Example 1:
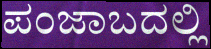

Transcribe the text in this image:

ಪಂಜಾಬದಲ್ಲಿ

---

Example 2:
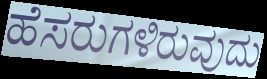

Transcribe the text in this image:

ಹೆಸರುಗಳಿರುವುದು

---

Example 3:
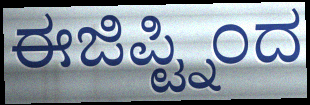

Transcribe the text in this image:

ಈಜಿಪ್ಟ್ನಿಂದ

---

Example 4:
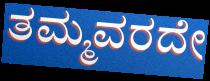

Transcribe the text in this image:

ತಮ್ಮವರದೇ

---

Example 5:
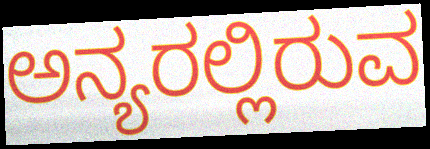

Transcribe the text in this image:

ಅನ್ಯರಲ್ಲಿರುವ